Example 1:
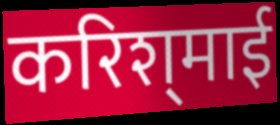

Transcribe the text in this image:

करिश्माई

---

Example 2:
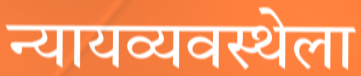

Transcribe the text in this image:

न्यायव्यवस्थेला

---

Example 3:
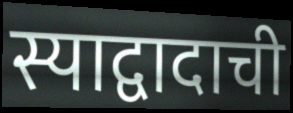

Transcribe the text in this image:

स्याद्वादाची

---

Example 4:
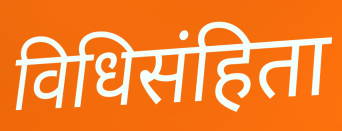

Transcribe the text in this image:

विधिसंहिता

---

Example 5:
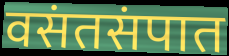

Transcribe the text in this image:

वसंतसंपात